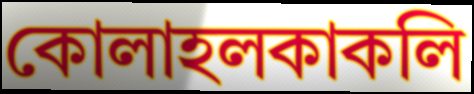
কোলাহলকাকলি